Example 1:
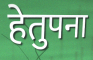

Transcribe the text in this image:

हेतुपना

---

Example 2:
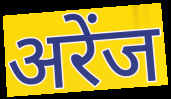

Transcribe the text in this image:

अरेंज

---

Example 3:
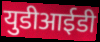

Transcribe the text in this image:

युडीआईडी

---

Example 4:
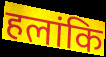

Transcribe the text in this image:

हलांकि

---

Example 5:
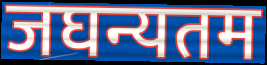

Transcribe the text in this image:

जघन्यतम